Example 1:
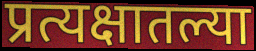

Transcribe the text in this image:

प्रत्यक्षातल्या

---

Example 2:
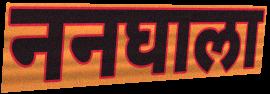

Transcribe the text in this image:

ननघाला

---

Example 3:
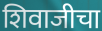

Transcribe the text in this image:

शिवाजीचा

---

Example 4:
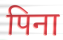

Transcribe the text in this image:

पिना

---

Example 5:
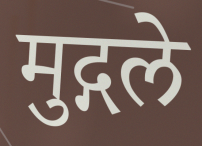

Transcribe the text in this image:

मुद्गले